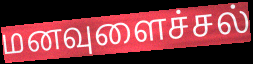
மனவுளைச்சல்